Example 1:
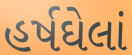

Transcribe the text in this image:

હર્ષઘેલાં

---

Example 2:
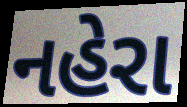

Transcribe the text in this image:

નહેરા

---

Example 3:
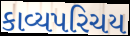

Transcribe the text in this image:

કાવ્યપરિચય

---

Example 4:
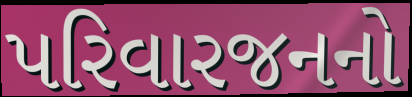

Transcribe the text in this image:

પરિવારજનનો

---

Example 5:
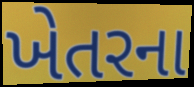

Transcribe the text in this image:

ખેતરના